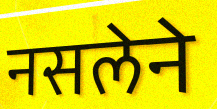
नसलेने